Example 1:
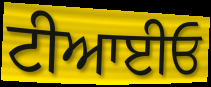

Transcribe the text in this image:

ਟੀਆਈਓ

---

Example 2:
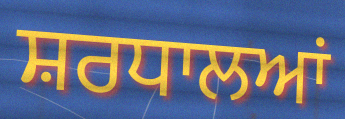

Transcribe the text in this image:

ਸ਼ਰਧਾਲਆਂ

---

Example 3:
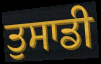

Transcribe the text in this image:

ਤੁਸਾਡੀ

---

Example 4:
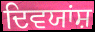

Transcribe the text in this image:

ਦਿਵਯਾਂਸ਼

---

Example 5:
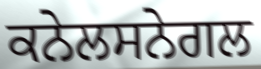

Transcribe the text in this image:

ਕਨੇਲਸਨੇਗਲ